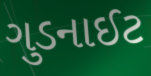
ગુડનાઈટ